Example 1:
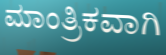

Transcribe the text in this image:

ಮಾಂತ್ರಿಕವಾಗಿ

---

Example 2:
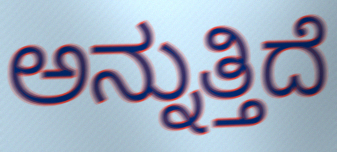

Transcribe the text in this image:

ಅನ್ನುತ್ತಿದೆ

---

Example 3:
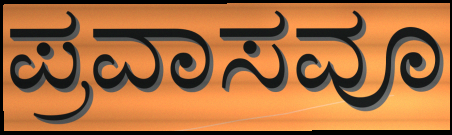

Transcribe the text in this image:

ಪ್ರವಾಸವೂ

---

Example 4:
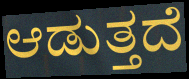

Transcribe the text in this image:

ಆಡುತ್ತದೆ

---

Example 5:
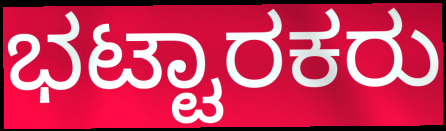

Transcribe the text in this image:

ಭಟ್ಟಾರಕರು